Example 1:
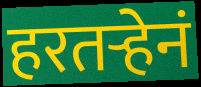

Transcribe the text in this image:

हरतर्‍हेनं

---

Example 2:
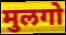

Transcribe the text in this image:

मुलगो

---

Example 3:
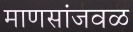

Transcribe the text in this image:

माणसांजवळ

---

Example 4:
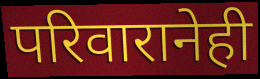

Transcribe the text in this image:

परिवारानेही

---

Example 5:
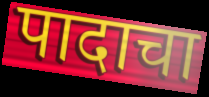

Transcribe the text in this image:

पादाचा